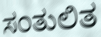
ಸಂತುಲಿತ